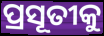
ପ୍ରସୂତୀକୁ